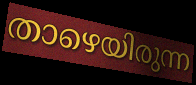
താഴെയിരുന്ന